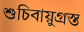
শুচিবায়ুগ্ৰস্ত